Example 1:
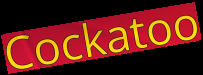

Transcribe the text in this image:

Cockatoo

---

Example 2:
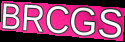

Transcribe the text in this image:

BRCGS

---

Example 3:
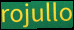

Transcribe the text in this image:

rojullo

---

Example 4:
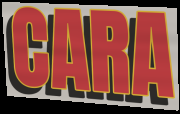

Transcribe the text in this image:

CARA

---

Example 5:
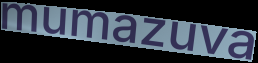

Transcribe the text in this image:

mumazuva